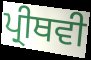
ਪ੍ਰੀਥਵੀ